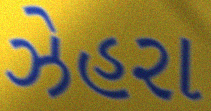
ઝેહરા